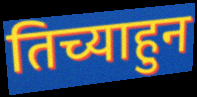
तिच्याहुन